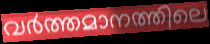
വർത്തമാനത്തിലെ